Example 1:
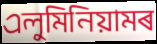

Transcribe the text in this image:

এলুমিনিয়ামৰ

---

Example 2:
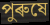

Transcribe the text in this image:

পুৰুষে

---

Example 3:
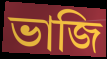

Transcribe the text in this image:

ভাজি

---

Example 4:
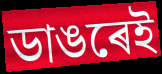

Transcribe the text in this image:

ডাঙৰেই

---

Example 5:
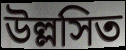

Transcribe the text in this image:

উল্লসিত